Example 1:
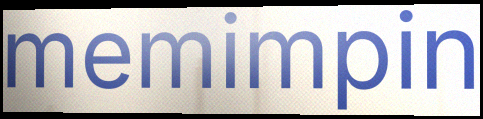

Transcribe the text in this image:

memimpin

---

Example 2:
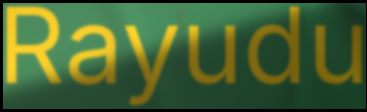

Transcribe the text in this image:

Rayudu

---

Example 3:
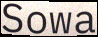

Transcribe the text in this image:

Sowa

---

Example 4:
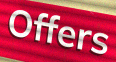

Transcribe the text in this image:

Offers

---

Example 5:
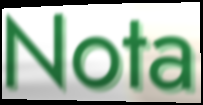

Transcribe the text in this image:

Nota